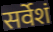
सर्वेशं